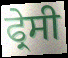
ਫ੍ਰੇਸੀ